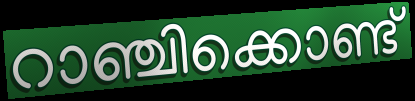
റാഞ്ചിക്കൊണ്ട്